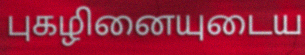
புகழினையுடைய